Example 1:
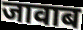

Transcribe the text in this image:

जावाब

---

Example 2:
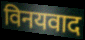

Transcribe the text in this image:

विनयवाद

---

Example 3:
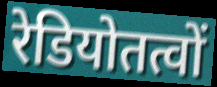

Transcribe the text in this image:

रेडियोतत्वों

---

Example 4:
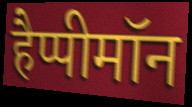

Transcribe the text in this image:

हैप्पीमॉन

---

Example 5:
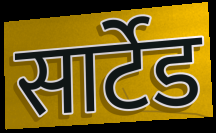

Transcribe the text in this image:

सार्टेड